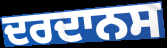
ਦਰਦਾਨਸ